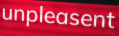
unpleasent